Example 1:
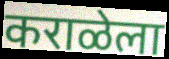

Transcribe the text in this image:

कराळेला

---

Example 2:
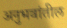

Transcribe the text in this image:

अनुभवांतील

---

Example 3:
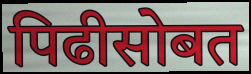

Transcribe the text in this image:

पिढीसोबत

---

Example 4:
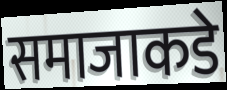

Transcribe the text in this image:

समाजाकडे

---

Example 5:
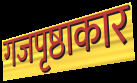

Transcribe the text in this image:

गजपृष्ठाकार